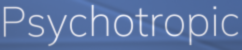
Psychotropic